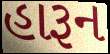
હારૂન